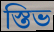
স্তিভ